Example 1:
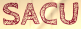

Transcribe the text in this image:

SACU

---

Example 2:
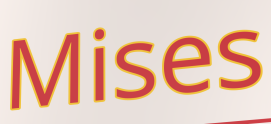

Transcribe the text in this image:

Mises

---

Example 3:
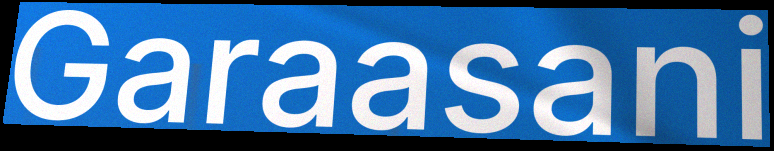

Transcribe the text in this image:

Garaasani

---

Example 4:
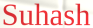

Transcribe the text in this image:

Suhash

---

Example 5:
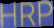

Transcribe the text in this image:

HRP